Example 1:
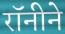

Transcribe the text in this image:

रॉनीने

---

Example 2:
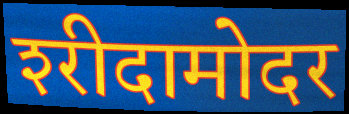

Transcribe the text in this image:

श्रीदामोदर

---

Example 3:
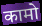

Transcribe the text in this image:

कामो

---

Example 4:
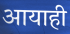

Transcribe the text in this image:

आयाही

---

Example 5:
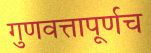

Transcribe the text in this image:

गुणवत्तापूर्णच